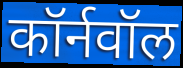
कॉर्नवॉल